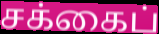
சக்கைப்